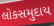
લોકસમુદાય